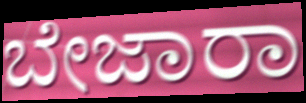
ಬೇಜಾರಾ